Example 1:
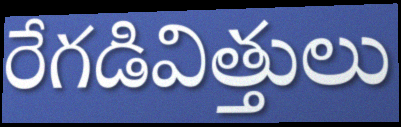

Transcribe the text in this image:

రేగడివిత్తులు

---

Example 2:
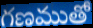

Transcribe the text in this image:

గణముతో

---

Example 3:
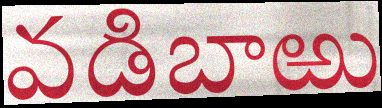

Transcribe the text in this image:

వడిబాఱు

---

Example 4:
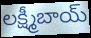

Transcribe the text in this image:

లక్ష్మీబాయ్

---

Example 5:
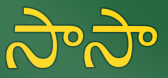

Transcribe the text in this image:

సాసా